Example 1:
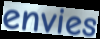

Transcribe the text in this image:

envies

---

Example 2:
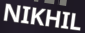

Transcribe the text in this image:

NIKHIL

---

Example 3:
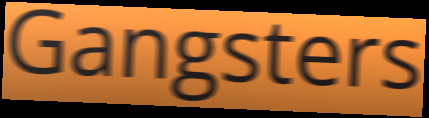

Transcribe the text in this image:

Gangsters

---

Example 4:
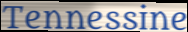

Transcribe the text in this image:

Tennessine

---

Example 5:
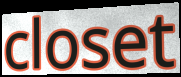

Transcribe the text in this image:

closet